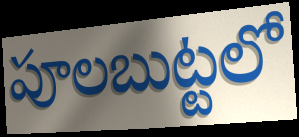
పూలబుట్టలో